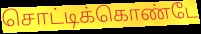
சொட்டிக்கொண்டே